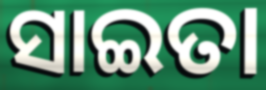
ସାଇତା